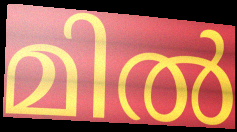
മിൽ